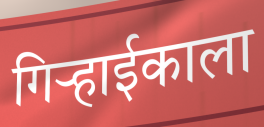
गिऱ्हाईकाला